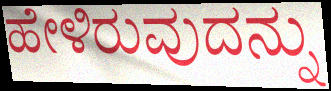
ಹೇಳಿರುವುದನ್ನು